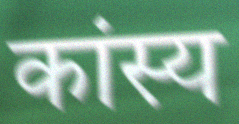
कांस्‍य